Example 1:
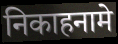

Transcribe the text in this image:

निकाहनामे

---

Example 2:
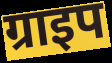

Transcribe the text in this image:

ग्राइप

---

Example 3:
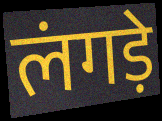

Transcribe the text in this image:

लंगड़े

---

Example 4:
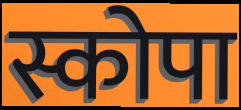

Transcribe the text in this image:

स्कोपा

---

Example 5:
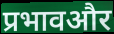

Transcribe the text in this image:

प्रभावऔर